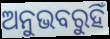
ଅନୁଭବରୁହିଁ